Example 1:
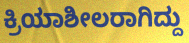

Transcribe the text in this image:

ಕ್ರಿಯಾಶೀಲರಾಗಿದ್ದು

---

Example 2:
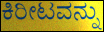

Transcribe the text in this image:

ಕಿರೀಟವನ್ನು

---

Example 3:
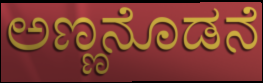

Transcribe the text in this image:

ಅಣ್ಣನೊಡನೆ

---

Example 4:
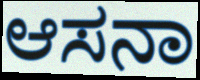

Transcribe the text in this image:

ಆಸನಾ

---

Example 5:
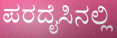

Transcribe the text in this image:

ಪರದೈಸಿನಲ್ಲಿ